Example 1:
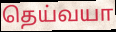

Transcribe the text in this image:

தெய்வயா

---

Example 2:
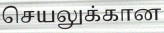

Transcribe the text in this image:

செயலுக்கான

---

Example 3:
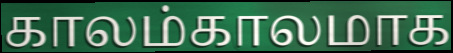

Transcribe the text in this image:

காலம்காலமாக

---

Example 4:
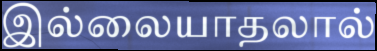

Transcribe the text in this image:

இல்லையாதலால்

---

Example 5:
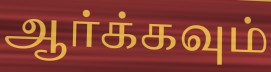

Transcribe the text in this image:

ஆர்க்கவும்